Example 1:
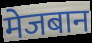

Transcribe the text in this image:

मेजबान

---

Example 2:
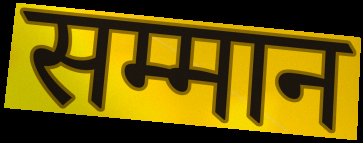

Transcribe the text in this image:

सम्मान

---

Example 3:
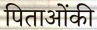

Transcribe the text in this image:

पिताओंकी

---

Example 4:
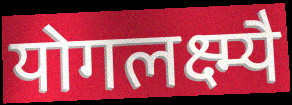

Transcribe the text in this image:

योगलक्ष्म्यै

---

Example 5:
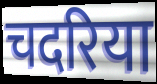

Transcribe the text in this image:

चदरिया